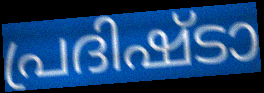
പ്രദിഷ്ടാ